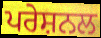
ਪਰੇਸ਼ਨਲ